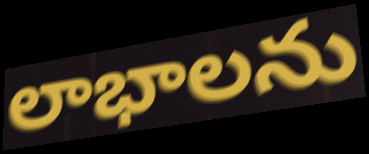
లాభాలను